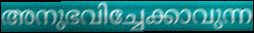
അനുഭവിച്ചേക്കാവുന്ന